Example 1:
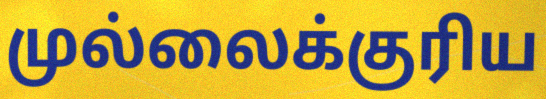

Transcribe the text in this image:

முல்லைக்குரிய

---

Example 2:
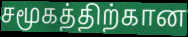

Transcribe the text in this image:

சமூகத்திற்கான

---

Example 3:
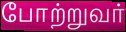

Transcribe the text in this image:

போற்றுவர்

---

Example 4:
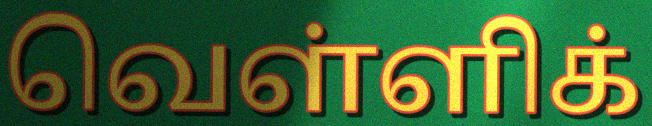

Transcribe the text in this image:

வெள்ளிக்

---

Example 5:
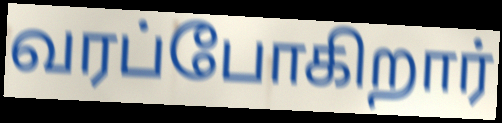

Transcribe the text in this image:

வரப்போகிறார்